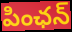
పింఛన్